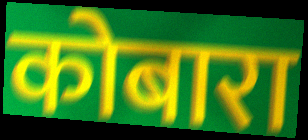
कोबारा